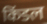
किंडल